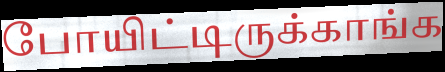
போயிட்டிருக்காங்க